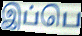
இப்பெ